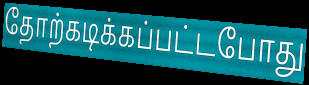
தோற்கடிக்கப்பட்டபோது